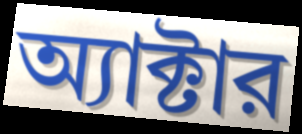
অ্যাক্টার